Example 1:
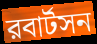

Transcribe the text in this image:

রবার্টসন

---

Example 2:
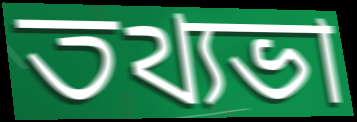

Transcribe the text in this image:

তথ্যভা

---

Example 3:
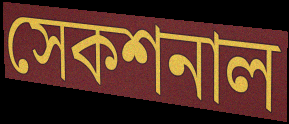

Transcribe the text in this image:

সেকশনাল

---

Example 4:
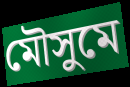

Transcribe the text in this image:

মৌসুমে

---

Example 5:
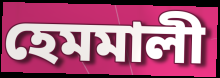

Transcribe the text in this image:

হেমমালী